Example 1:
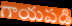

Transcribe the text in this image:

గాయపడి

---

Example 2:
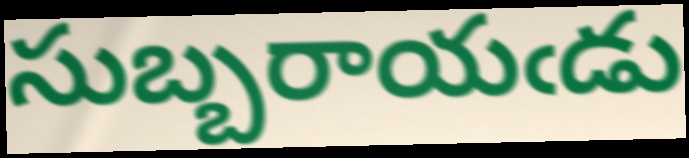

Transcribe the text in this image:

సుబ్బరాయఁడు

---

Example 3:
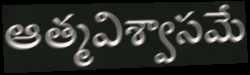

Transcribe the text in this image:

ఆత్మవిశ్వాసమే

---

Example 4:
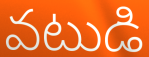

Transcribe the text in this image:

వటుడి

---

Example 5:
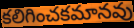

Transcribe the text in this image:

కలిగించకమానవు